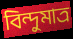
বিন্দুমাত্র